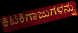
ಕಿಟಕಿಗಾಜುಗಳನ್ನು